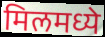
मिलमध्ये